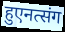
हुएनत्संग